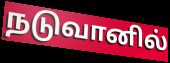
நடுவானில்